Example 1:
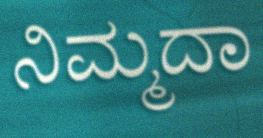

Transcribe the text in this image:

ನಿಮ್ಮದಾ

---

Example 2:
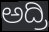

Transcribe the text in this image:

ಅದ್ರಿ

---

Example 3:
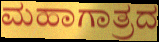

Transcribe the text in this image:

ಮಹಾಗಾತ್ರದ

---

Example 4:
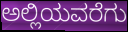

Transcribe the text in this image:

ಅಲ್ಲಿಯವರೆಗು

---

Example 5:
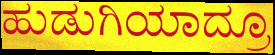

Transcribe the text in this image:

ಹುಡುಗಿಯಾದ್ರೂ